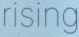
rising